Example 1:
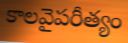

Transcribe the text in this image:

కాలవైపరీత్యం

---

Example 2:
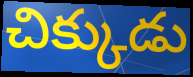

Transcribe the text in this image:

చిక్కుడు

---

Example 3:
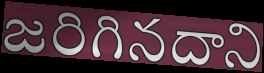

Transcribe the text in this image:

జరిగినదాని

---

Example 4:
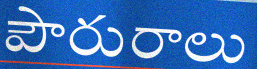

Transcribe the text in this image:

పౌరురాలు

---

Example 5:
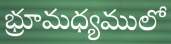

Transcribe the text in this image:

భ్రూమధ్యములో